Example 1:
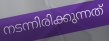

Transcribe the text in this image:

നടന്നിരിക്കുന്നത്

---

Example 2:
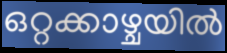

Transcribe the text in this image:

ഒറ്റക്കാഴ്ചയിൽ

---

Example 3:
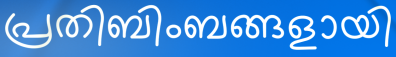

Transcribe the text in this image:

പ്രതിബിംബങ്ങളായി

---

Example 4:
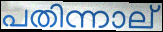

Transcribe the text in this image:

പതിന്നാല്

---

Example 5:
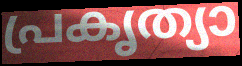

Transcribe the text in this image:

പ്രകൃത്യാ